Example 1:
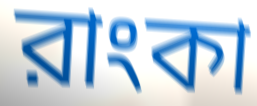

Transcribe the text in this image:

রাংকা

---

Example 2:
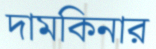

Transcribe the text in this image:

দামকিনার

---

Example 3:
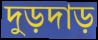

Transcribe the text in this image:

দুড়দাড়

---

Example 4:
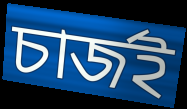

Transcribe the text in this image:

চার্জই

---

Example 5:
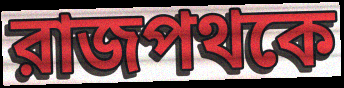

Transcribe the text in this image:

রাজপথকে